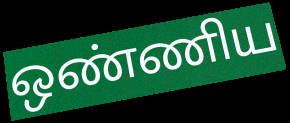
ஒண்ணிய